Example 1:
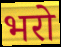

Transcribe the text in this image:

भरो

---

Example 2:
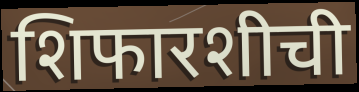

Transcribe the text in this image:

शिफारशीची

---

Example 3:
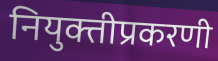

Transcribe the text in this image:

नियुक्तीप्रकरणी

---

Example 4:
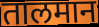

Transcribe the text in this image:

तालमान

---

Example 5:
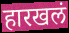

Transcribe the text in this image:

हारखलं